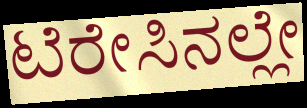
ಟೆರೇಸಿನಲ್ಲೇ